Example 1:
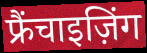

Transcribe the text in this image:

फ्रैंचाइज़िंग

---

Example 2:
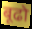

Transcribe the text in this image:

बूढो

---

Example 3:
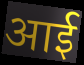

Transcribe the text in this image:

आई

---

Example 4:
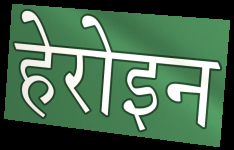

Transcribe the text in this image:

हेरोइन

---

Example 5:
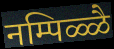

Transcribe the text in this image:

नम्पिळ्ळै